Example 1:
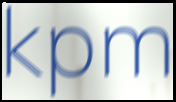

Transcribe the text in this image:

kpm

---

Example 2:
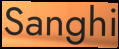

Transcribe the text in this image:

Sanghi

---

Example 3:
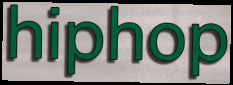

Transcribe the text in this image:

hiphop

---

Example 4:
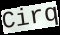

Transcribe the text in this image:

Cirq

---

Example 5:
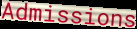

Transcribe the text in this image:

Admissions